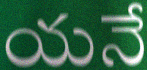
యనే